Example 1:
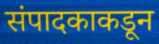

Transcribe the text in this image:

संपादकाकडून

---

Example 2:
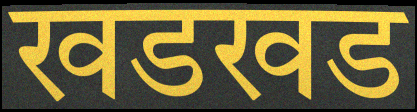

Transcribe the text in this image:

खडखड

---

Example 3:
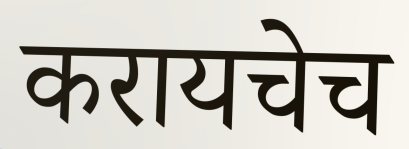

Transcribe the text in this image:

करायचेच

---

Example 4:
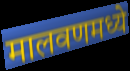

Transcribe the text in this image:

मालवणमध्ये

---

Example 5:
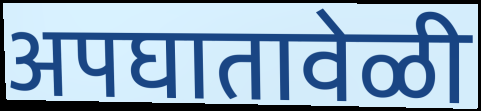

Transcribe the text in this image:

अपघातावेळी